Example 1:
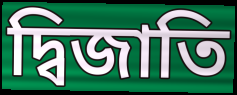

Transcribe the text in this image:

দ্বিজাতি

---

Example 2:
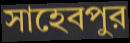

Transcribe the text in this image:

সাহেবপুর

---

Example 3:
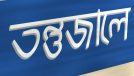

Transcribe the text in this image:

তন্তুজালে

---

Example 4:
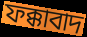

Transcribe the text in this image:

ফক্কাবাদ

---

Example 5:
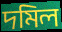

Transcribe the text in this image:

দমিল